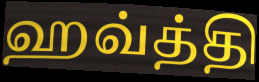
ஹவ்த்தி